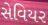
સેવિયર